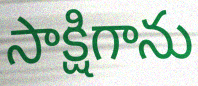
సాక్షిగాను